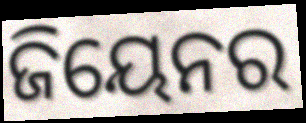
ଜିୟେନର